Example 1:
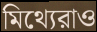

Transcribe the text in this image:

মিথ্যেরাও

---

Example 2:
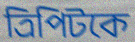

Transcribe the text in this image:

ত্রিপিটকে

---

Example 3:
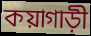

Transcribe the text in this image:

কয়াগাড়ী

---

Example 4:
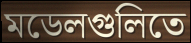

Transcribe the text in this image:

মডেলগুলিতে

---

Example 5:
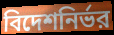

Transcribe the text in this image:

বিদেশনির্ভর